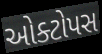
ઓક્ટોપસ